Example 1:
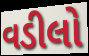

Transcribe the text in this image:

વડીલો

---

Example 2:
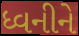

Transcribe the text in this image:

ધ્વનીને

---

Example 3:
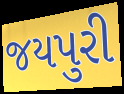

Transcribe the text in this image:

જયપુરી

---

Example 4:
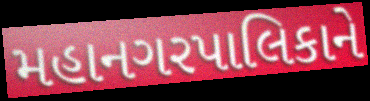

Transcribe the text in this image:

મહાનગરપાલિકાને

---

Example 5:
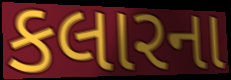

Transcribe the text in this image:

કલારના